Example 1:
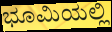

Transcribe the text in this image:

ಭೂಮಿಯಲ್ಲಿ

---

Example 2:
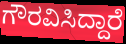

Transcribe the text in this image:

ಗೌರವಿಸಿದ್ದಾರೆ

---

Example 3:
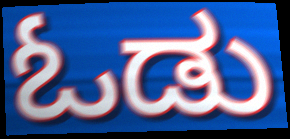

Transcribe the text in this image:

ಓಡು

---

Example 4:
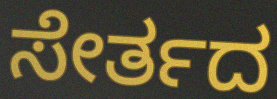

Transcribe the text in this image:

ಸೇರ್ತದ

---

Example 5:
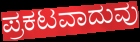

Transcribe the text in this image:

ಪ್ರಕಟವಾದುವು